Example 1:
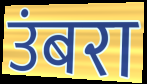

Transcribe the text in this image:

उंबरा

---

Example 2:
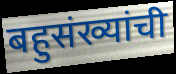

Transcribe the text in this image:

बहुसंख्यांची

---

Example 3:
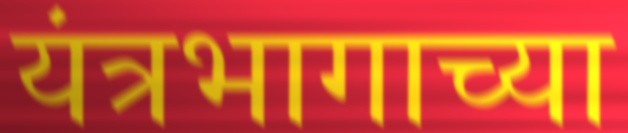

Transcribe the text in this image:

यंत्रभागाच्या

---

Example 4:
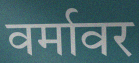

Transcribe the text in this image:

वर्मावर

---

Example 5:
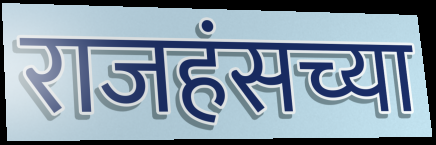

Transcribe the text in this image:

राजहंसच्या